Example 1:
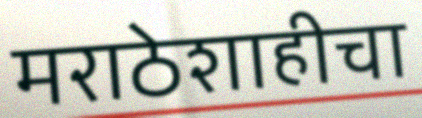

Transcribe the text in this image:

मराठेशाहीचा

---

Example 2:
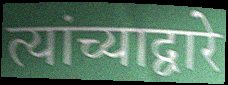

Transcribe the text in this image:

त्यांच्याद्वारे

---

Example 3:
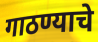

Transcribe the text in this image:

गाठण्याचे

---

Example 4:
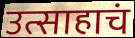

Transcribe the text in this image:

उत्साहाचं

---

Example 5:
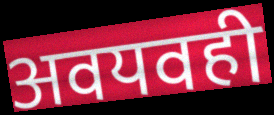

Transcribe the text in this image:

अवयवही